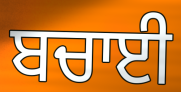
ਬਚਾਈ